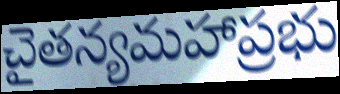
చైతన్యమహాప్రభు